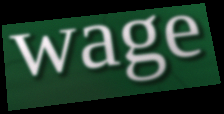
wage